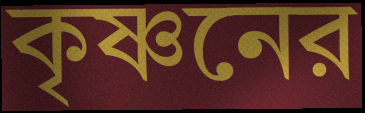
কৃষ্ণনের